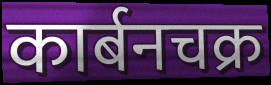
कार्बनचक्र